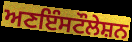
ਅਣਇੰਸਟੌਲੇਸ਼ਨ